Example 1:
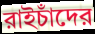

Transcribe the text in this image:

রাইচাঁদের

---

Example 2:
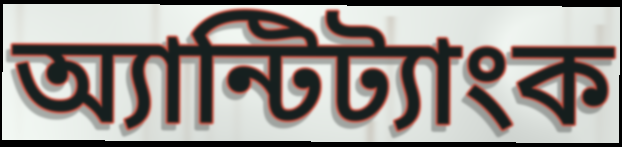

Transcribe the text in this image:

অ্যান্টিট্যাংক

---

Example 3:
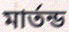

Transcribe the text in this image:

মার্তন্ড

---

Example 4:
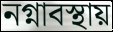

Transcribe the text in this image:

নগ্নাবস্থায়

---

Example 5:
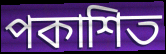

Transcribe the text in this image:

পকাশিত